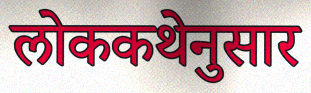
लोककथेनुसार